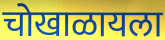
चोखाळायला